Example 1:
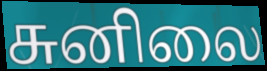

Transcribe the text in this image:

சுனிலை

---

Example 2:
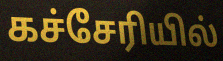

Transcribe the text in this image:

கச்சேரியில்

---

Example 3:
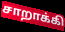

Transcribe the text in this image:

சாறாக்கி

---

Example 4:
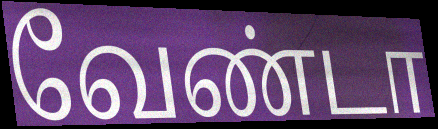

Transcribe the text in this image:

வேண்டா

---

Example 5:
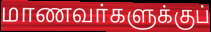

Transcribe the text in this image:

மாணவர்களுக்குப்